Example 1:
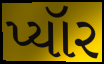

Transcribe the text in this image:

પ્યૉર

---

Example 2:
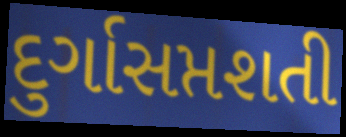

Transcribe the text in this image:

દુર્ગાસપ્તશતી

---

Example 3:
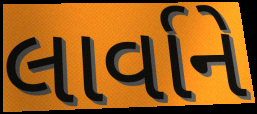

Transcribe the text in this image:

લાર્વાને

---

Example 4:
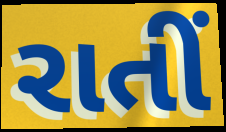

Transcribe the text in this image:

રાતીં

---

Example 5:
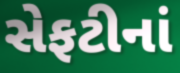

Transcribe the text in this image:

સેફટીનાં